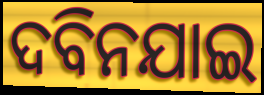
ଦବିନଯାଇ